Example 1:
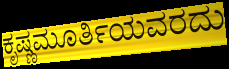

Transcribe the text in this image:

ಕೃಷ್ಣಮೂರ್ತಿಯವರದು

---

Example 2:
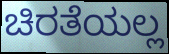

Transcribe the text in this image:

ಚಿರತೆಯಲ್ಲ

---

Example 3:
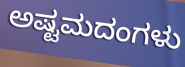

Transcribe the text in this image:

ಅಷ್ಟಮದಂಗಳು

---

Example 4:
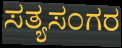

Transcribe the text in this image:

ಸತ್ಯಸಂಗರ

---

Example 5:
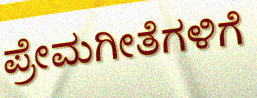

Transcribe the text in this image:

ಪ್ರೇಮಗೀತೆಗಳಿಗೆ